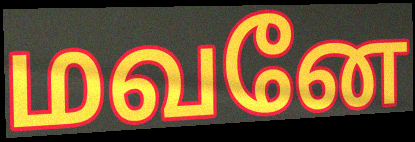
மவனே